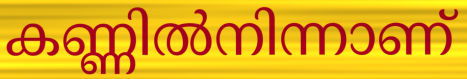
കണ്ണിൽനിന്നാണ്